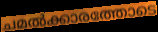
ചമൽക്കാരത്തോടെ